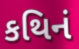
કથિનં